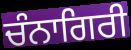
ਚੰਨਾਗਿਰੀ